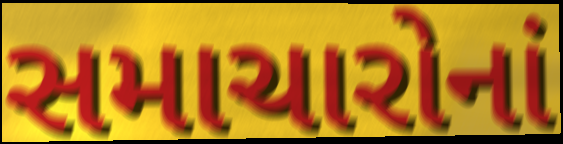
સમાચારોનાં